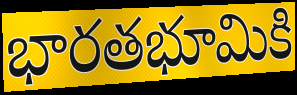
భారతభూమికి